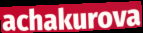
achakurova